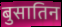
बुसातिन